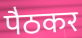
पैठकर